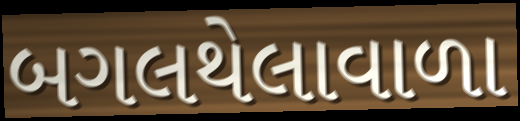
બગલથેલાવાળા